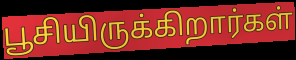
பூசியிருக்கிறார்கள்